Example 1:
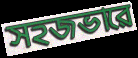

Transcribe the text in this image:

সহজভাৱে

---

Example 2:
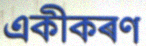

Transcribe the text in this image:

একীকৰণ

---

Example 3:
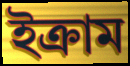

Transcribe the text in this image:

ইক্ৰাম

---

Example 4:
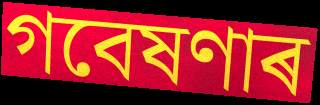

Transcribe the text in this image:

গবেষণাৰ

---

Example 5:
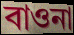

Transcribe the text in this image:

বাওনা